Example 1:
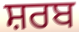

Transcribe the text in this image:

ਸ਼ਰਬ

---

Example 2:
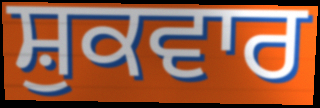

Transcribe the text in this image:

ਸ਼ੁਕਵਾਰ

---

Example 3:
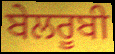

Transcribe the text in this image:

ਬੇਲਰੂਬੀ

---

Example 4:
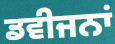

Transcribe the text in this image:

ਡਵੀਜਨਾਂ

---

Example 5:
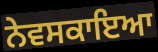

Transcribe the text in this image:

ਨੇਵਸਕਾਇਆ